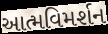
આત્મવિમર્શન